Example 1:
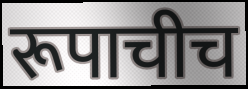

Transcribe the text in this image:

रूपाचीच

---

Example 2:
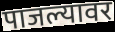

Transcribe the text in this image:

पाजल्यावर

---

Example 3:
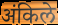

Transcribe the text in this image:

अंकिले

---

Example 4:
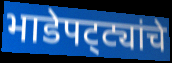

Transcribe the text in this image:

भाडेपट्ट्यांचे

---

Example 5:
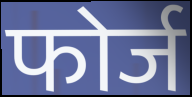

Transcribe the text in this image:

फोर्ज